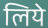
लिये